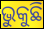
ଭୁକୁଛି